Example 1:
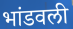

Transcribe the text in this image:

भांडवली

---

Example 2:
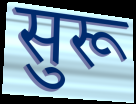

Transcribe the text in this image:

सुरू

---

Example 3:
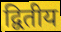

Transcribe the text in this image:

द्वितीय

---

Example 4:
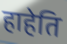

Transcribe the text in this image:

हाहेति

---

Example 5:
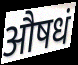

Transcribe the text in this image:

औषधं